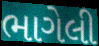
ભાગેલી